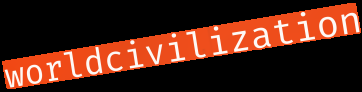
worldcivilization